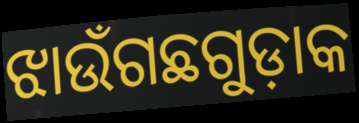
ଝାଉଁଗଛଗୁଡ଼ାକ